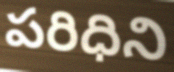
పరిధిని